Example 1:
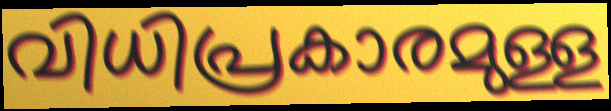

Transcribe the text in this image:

വിധിപ്രകാരമുള്ള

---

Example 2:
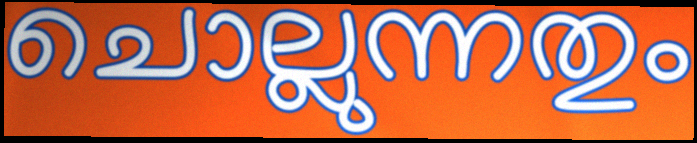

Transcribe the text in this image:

ചൊല്ലുന്നതും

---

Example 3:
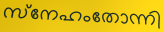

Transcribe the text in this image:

സ്‌നേഹംതോന്നി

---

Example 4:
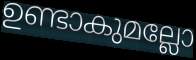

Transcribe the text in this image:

ഉണ്ടാകുമല്ലോ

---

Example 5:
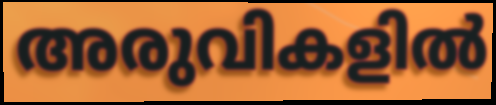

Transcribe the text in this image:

അരുവികളിൽ